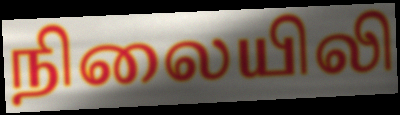
நிலையிலி